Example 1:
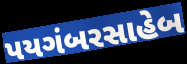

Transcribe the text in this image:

પયગંબરસાહેબ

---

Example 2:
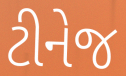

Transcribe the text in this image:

ટીનેજ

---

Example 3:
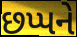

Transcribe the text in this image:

છપ્પને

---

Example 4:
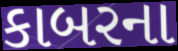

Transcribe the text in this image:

કાબરના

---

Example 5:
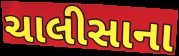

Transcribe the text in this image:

ચાલીસાના